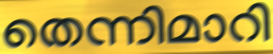
തെന്നിമാറി